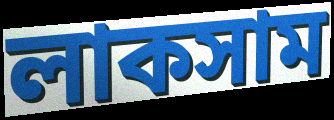
লাকসাম